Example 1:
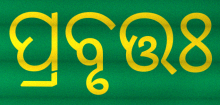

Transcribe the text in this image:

ପ୍ରବୃତ୍ତଃ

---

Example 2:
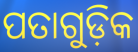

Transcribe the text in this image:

ପତାଗୁଡ଼ିକ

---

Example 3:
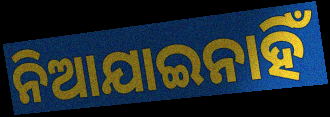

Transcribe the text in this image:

ନିଆଯାଇନାହିଁ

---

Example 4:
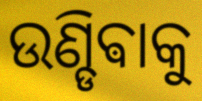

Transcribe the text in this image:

ଉଣ୍ଡିଵାକୁ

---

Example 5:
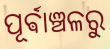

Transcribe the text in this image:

ପୂର୍ଵାଞ୍ଚଳରୁ